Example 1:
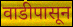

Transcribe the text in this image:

वाडीपासून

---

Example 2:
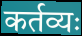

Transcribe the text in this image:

कर्तव्यः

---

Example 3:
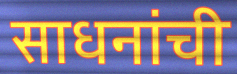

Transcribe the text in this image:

साधनांची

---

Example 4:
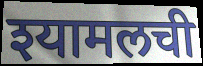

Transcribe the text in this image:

श्यामलची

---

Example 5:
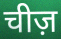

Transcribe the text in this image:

चीज़